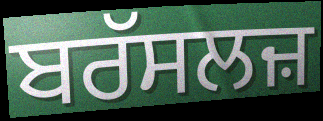
ਬਰੱਸਲਜ਼